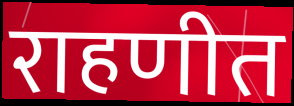
राहणीत